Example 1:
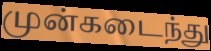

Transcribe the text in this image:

முன்கடைந்து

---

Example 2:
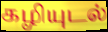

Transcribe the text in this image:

கழியுடல்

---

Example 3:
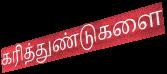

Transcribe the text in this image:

கரித்துண்டுகளை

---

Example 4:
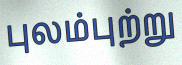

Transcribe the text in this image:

புலம்புற்று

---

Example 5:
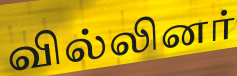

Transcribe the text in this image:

வில்லினர்